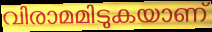
വിരാമമിടുകയാണ്